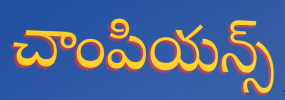
చాంపియన్స్